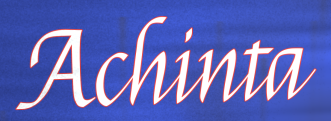
Achinta